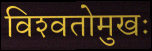
विश्वतोमुखः